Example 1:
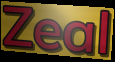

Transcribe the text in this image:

Zeal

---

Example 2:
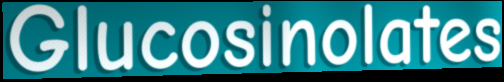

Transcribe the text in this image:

Glucosinolates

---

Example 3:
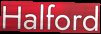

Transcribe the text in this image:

Halford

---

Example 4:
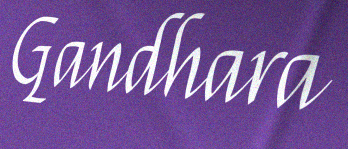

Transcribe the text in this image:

Gandhara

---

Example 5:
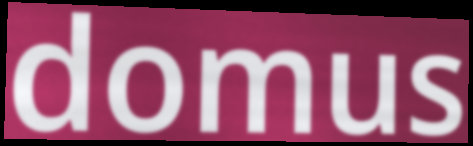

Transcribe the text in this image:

domus